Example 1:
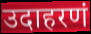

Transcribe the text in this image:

उदाहरणं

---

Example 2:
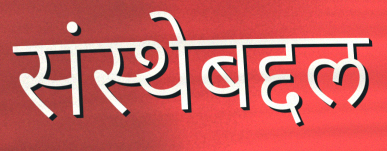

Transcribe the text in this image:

संस्थेबद्दल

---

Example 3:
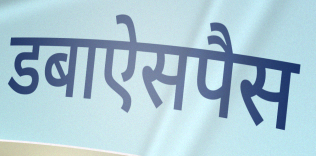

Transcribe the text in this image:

डबाऐसपैस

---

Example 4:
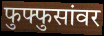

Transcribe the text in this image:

फुफ्फुसांवर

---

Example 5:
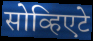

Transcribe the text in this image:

सोव्हिएटे